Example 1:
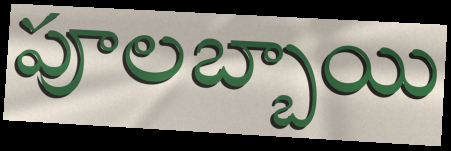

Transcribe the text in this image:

పూలబ్బాయి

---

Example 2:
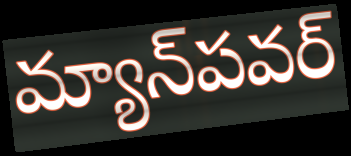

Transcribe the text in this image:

మ్యాన్‌పవర్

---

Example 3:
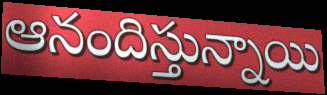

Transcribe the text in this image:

ఆనందిస్తున్నాయి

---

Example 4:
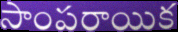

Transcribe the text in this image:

సాంపరాయిక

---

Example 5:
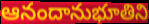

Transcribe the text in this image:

ఆనందానుభూతిని